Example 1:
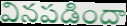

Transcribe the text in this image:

వినపడిందా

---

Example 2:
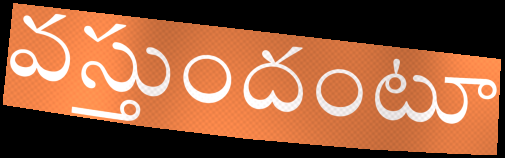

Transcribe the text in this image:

వస్తుందంటూ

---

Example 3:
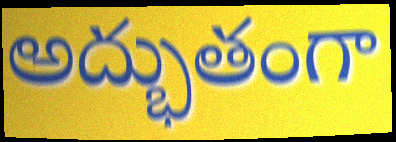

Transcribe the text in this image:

అద్భుతంగా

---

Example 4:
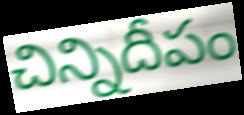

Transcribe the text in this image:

చిన్నిదీపం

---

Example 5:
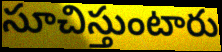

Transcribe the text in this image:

సూచిస్తుంటారు